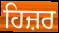
ਹਿਜ਼ਰ